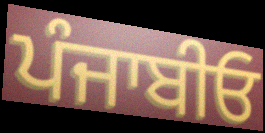
ਪੰਜਾਬੀਓ